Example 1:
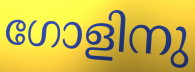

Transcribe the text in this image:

ഗോളിനു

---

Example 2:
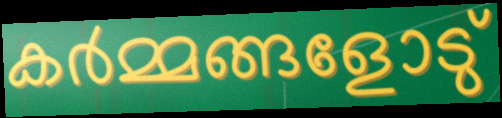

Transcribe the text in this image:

കർമ്മങ്ങളോടു്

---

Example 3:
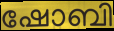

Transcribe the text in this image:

ഷോബി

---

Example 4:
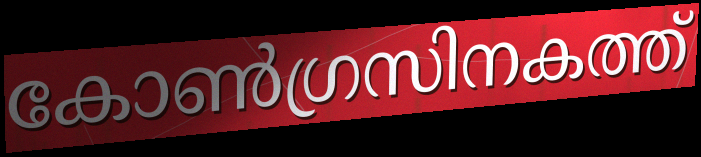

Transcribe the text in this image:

കോൺഗ്രസിനകത്ത്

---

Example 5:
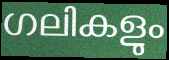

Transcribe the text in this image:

ഗലികളും